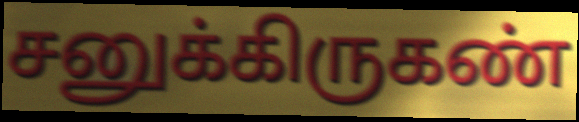
சனுக்கிருகண்